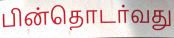
பின்தொடர்வது